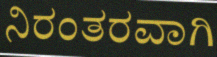
ನಿರಂತರವಾಗಿ